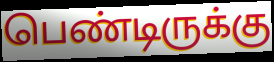
பெண்டிருக்கு